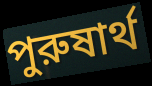
পুরুষার্থ